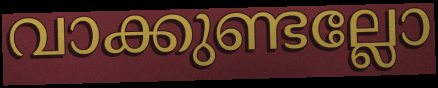
വാക്കുണ്ടല്ലോ